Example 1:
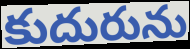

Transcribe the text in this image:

కుదురును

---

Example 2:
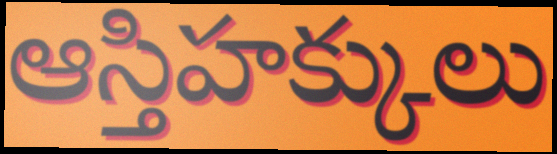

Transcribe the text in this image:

ఆస్తిహక్కులు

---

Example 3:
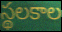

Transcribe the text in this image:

స్థలకాల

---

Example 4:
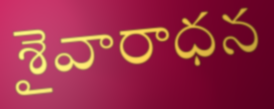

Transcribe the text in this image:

శైవారాధన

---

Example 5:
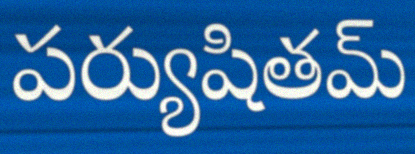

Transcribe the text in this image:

పర్యుషితమ్